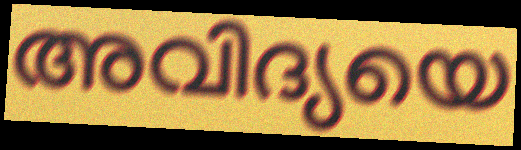
അവിദ്യയെ